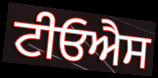
ਟੀਓਐਸ